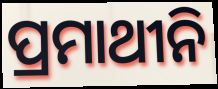
ପ୍ରମାଥୀନି